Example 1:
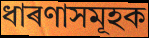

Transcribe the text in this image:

ধাৰণাসমূহক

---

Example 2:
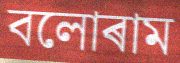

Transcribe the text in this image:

বলোৰাম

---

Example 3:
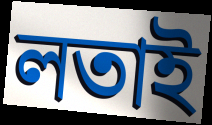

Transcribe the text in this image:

লতাই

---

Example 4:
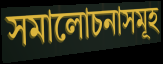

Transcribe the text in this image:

সমালোচনাসমূহ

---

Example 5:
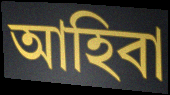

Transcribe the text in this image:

আহিবা